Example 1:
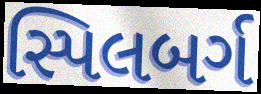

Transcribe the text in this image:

સ્પિલબર્ગ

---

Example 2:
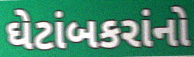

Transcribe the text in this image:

ઘેટાંબકરાંનો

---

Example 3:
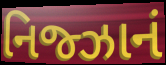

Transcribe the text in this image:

નિજ્ઝાનં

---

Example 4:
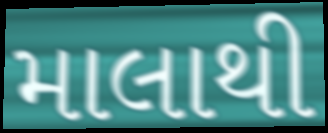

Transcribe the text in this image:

માલાથી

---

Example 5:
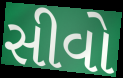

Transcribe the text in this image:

સીવો